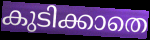
കുടിക്കാതെ